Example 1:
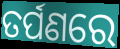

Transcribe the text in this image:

ତର୍ପଣରେ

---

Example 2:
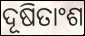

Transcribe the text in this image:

ଦୂଷିତାଂଶ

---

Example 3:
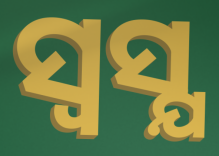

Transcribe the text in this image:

ସ୍ଵସ୍ଯ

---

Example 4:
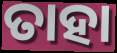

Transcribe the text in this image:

ତାହା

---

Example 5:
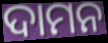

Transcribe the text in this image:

ଦାମନ